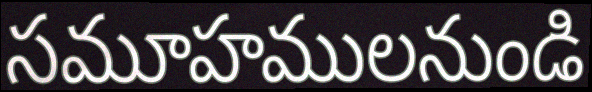
సమూహములనుండి